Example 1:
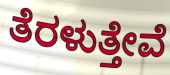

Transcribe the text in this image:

ತೆರಳುತ್ತೇವೆ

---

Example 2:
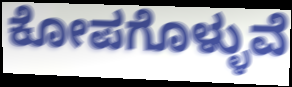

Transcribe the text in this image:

ಕೋಪಗೊಳ್ಳುವೆ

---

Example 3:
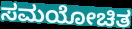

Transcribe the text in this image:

ಸಮಯೋಚಿತ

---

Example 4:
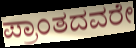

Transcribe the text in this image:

ಪ್ರಾಂತದವರೇ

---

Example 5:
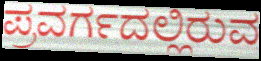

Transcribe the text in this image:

ಪ್ರವರ್ಗದಲ್ಲಿರುವ